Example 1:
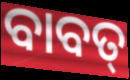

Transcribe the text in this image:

ବାବତ୍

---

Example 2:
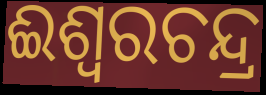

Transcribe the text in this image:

ଈଶ୍ୱରଚନ୍ଦ୍ର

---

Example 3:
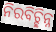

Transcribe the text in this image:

ନିରବିଚ୍ଛିନ୍ନ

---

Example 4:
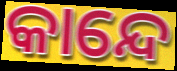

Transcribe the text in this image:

କାନ୍ଦେ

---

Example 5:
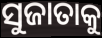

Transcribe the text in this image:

ସୁଜାତାକୁ